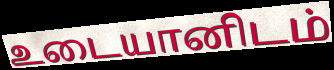
உடையானிடம்